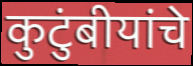
कुटुंबीयांचे